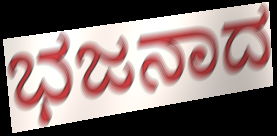
ಭಜನಾದ